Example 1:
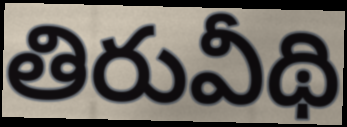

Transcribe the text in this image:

తిరువీథి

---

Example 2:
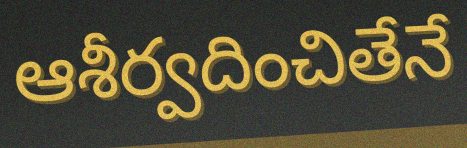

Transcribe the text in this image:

ఆశీర్వదించితేనే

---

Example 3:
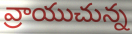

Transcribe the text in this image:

వ్రాయుచున్న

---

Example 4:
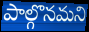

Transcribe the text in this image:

పాల్గొనమని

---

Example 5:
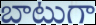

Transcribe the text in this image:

బాటుగా